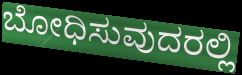
ಬೋಧಿಸುವುದರಲ್ಲಿ